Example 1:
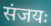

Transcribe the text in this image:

संजयः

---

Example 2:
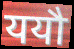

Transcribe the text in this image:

ययौ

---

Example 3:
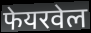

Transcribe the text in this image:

फेयरवेल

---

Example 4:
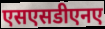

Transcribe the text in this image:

एसएसडीएनए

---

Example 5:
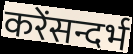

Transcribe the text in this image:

करेंसन्दर्भ